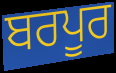
ਬਰਪੂਰ